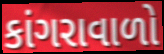
કાંગરાવાળો